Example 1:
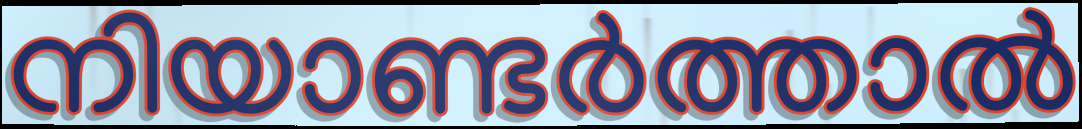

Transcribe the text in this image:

നിയാണ്ടർത്താൽ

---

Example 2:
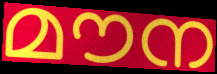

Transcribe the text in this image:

മൗന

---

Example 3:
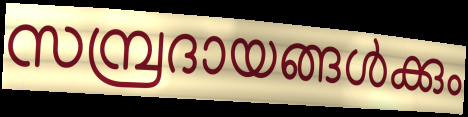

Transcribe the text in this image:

സമ്പ്രദായങ്ങൾക്കും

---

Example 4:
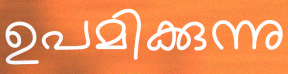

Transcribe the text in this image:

ഉപമിക്കുന്നു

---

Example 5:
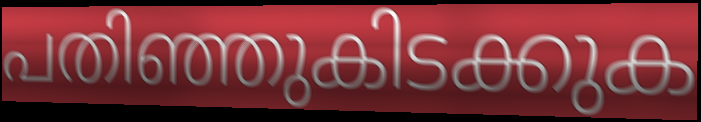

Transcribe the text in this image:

പതിഞ്ഞുകിടക്കുക